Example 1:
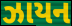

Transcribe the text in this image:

ઝાયન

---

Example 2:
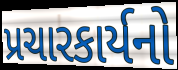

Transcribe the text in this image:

પ્રચારકાર્યનો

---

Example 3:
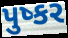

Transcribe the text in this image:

પુષ્કર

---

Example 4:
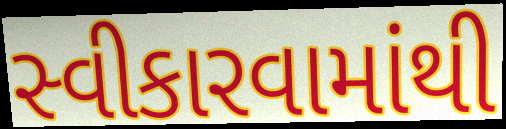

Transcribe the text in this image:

સ્વીકારવામાંથી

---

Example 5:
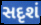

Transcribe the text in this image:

સદૃશં